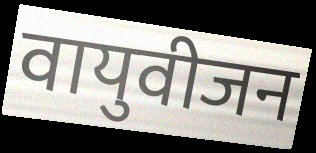
वायुवीजन